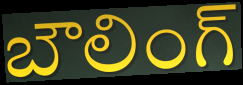
బౌలింగ్